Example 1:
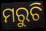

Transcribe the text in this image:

ମରୁଚି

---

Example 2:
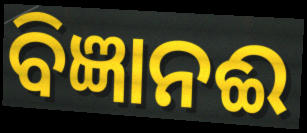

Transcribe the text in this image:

ବିଜ୍ଞାନଈ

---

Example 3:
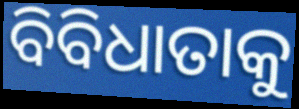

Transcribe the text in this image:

ବିବିଧାତାକୁ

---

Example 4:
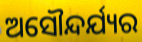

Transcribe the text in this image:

ଅସୌନ୍ଦର୍ଯ୍ୟର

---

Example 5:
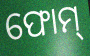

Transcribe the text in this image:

ଫୋମ୍